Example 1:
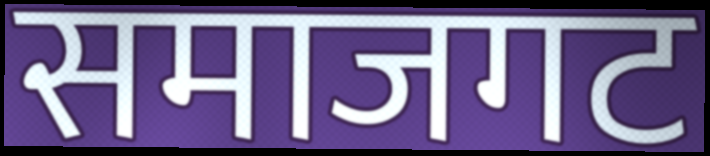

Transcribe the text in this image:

समाजगट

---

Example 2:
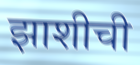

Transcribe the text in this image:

झाशीची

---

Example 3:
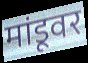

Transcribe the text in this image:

मांडूवर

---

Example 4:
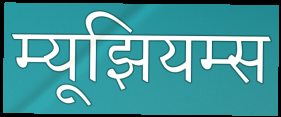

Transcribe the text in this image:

म्यूझियम्स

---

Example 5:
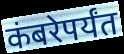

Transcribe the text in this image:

कंबरेपर्यंत